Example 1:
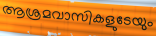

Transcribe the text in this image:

ആശ്രമവാസികളുടേയും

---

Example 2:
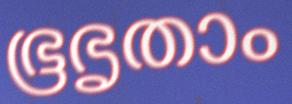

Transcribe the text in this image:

ഭൂഭൃതാം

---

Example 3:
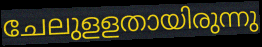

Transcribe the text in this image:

ചേലുളളതായിരുന്നു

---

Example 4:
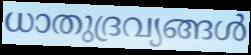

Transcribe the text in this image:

ധാതുദ്രവ്യങ്ങൾ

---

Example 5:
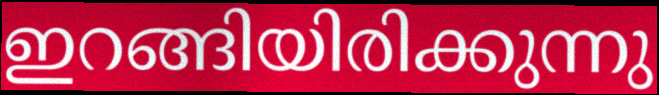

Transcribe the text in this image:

ഇറങ്ങിയിരിക്കുന്നു